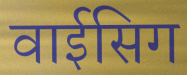
वाईसिग